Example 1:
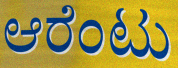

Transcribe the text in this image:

ಆರೆಂಟು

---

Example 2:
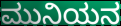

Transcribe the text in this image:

ಮುನಿಯನ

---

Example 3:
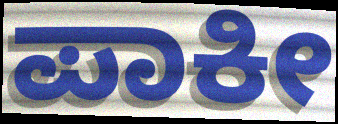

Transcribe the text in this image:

ಪಾಕೀ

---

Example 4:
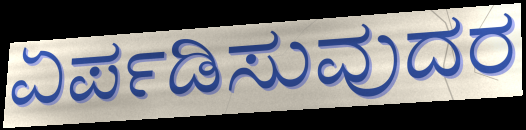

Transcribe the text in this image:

ಏರ್ಪಡಿಸುವುದರ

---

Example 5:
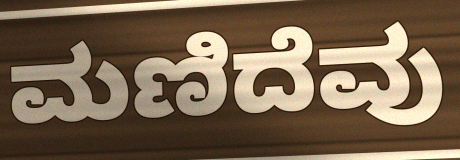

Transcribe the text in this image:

ಮಣಿದೆವು